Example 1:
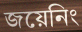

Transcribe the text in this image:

জয়েনিং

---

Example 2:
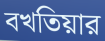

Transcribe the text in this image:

বখতিয়ার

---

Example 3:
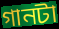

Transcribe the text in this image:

গানটা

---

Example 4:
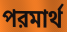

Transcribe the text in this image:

পরমার্থ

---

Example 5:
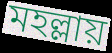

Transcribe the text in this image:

মহল্লায়